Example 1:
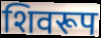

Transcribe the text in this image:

शिवरूप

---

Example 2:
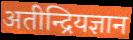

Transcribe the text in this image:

अतीन्द्रियज्ञान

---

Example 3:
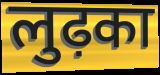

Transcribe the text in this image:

लुढ़का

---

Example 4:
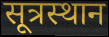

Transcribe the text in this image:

सूत्रस्थान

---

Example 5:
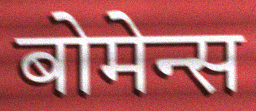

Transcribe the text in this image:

बोमेन्स